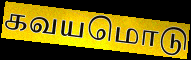
கவயமொடு